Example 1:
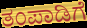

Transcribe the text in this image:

ತಂಪಾಡಿಗೆ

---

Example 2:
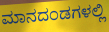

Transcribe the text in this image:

ಮಾನದಂಡಗಳಲ್ಲಿ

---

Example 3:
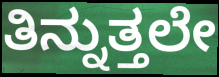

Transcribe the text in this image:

ತಿನ್ನುತ್ತಲೇ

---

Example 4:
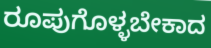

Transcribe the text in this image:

ರೂಪುಗೊಳ್ಳಬೇಕಾದ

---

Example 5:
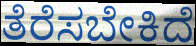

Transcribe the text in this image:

ತೆರೆಸಬೇಕಿದೆ